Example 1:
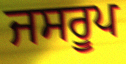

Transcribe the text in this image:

ਜਸਰੂਪ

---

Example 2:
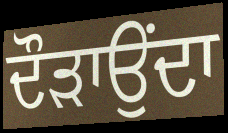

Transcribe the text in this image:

ਦੌੜਾਉਂਦਾ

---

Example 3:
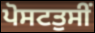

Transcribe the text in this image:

ਪੋਸਟਤੁਸੀਂ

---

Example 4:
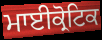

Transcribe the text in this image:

ਮਾਈਕ੍ਰੋਟਿਕ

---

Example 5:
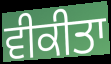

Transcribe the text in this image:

ਵੀਕੀਤਾ